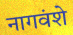
नागवंशे